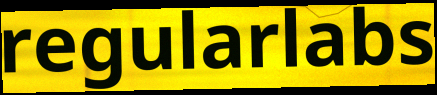
regularlabs